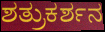
ಶತ್ರುಕರ್ಶನ